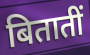
बितातीं